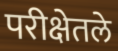
परीक्षेतले